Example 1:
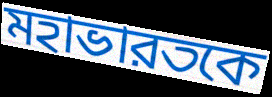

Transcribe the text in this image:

মহাভারতকে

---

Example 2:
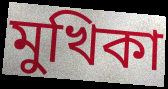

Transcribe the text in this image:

মুখিকা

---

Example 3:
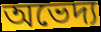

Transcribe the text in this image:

অভেদ্য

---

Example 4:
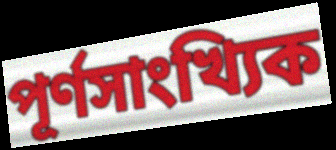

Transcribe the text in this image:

পূর্ণসাংখ্যিক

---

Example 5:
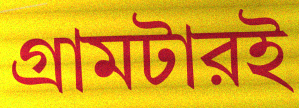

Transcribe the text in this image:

গ্রামটারই